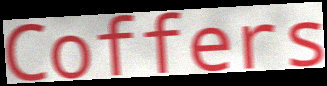
Coffers